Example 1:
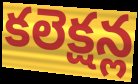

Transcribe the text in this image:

కలెక్షన్ల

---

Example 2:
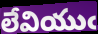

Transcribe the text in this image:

లేవియుఁ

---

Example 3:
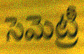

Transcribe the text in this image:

సెమెట్రీ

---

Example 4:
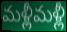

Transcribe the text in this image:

మళ్లీమళ్లీ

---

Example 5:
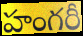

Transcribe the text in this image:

హంగరీ